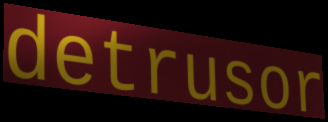
detrusor